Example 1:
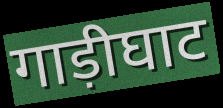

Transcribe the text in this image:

गाड़ीघाट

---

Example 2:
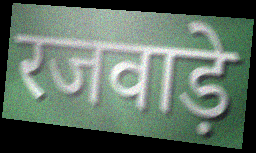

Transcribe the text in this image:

रजवाड़े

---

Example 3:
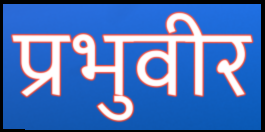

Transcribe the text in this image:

प्रभुवीर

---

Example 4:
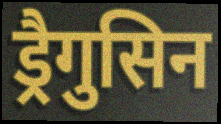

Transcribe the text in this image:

ड्रैगुसिन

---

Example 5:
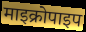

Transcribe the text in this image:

माइक्रोपाइप